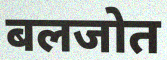
बलजोत